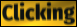
Clicking